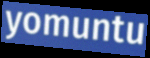
yomuntu